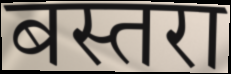
बस्तरा